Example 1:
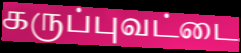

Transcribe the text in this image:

கருப்புவட்டை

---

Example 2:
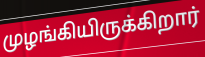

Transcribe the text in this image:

முழங்கியிருக்கிறார்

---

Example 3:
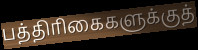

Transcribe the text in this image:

பத்திரிகைகளுக்குத்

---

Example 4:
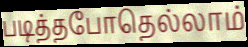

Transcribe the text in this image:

படித்தபோதெல்லாம்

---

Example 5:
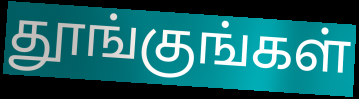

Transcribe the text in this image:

தூங்குங்கள்